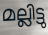
മല്ലിട്ടു